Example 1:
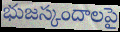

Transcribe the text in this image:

భుజస్కందాలపై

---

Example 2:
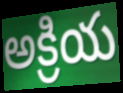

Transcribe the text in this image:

అక్రియ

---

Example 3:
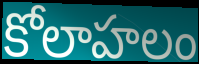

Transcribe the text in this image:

కోలాహలం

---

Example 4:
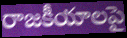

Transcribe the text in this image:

రాజకీయాలపై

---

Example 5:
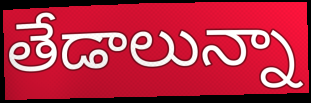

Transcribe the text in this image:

తేడాలున్నా